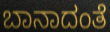
ಬಾನಾದಂತೆ